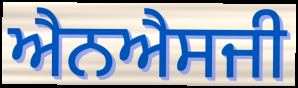
ਐਨਐਸਜੀ